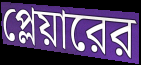
প্লেয়ারের